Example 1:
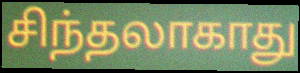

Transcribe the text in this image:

சிந்தலாகாது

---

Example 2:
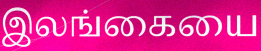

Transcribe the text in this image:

இலங்கையை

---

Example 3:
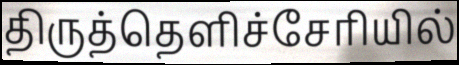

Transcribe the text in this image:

திருத்தெளிச்சேரியில்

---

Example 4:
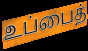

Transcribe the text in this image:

உப்பைத்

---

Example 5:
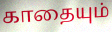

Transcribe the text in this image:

காதையும்